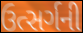
ઉત્સર્ગની